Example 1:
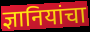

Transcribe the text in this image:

ज्ञानियांचा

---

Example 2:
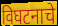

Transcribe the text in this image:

विघटनाचे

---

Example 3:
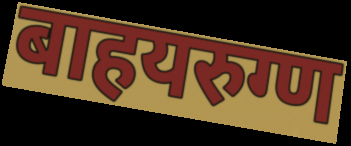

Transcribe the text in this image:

बाहयरुग्ण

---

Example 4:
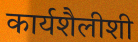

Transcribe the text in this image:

कार्यशैलीशी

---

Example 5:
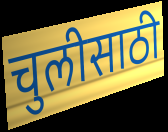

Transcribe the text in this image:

चुलीसाठी